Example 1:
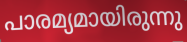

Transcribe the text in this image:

പാരമ്യമായിരുന്നു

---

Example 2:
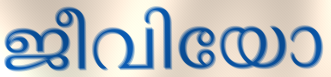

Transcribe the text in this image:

ജീവിയോ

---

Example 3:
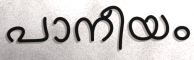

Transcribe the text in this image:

പാനീയം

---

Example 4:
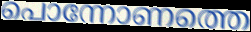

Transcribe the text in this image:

പൊന്നോണത്തെ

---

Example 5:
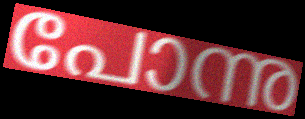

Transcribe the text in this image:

പോന്നു